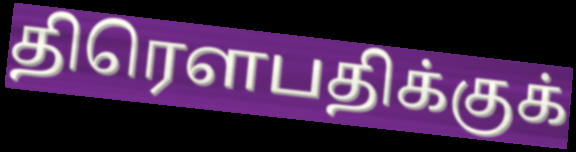
திரௌபதிக்குக்